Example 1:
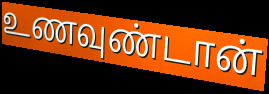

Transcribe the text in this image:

உணவுண்டான்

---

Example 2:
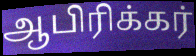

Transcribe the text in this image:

ஆபிரிக்கர்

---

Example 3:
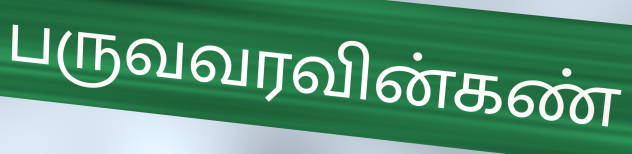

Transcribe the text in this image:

பருவவரவின்கண்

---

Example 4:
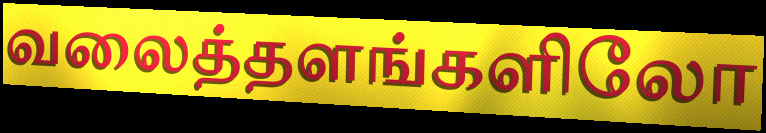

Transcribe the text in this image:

வலைத்தளங்களிலோ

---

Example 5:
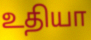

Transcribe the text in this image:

உதியா